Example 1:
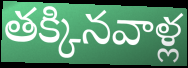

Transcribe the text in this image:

తక్కినవాళ్ల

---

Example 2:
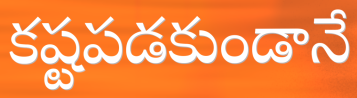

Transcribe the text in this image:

కష్టపడకుండానే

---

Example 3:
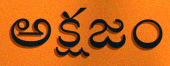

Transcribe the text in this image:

అక్షజం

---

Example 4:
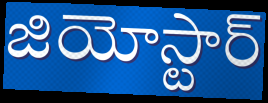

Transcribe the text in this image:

జియోస్టార్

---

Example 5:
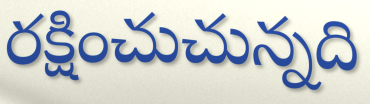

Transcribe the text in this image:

రక్షించుచున్నది